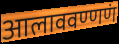
आलाववण्णणं